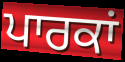
ਪਾਰਕਾਂ